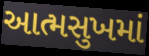
આત્મસુખમાં